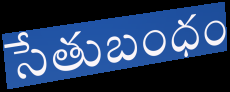
సేతుబంధం